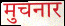
मुचनार